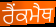
ਰੈਂਕਮੈਥ